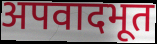
अपवादभूत